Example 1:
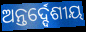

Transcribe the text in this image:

ଅନ୍ତର୍ଦ୍ଦେଶୀୟ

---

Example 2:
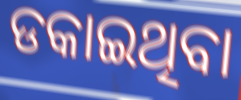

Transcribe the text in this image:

ଡକାଇଥିବା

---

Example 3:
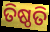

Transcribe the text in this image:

ତିଷ୍ଠତି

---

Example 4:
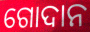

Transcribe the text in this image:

ଗୋଦାନ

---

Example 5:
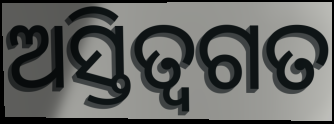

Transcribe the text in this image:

ଅସ୍ତିତ୍ବଗତ